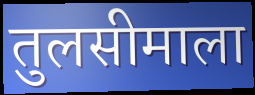
तुलसीमाला